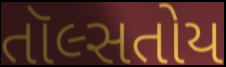
તૉલ્સતોય